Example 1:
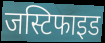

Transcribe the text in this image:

जस्टिफाइड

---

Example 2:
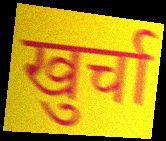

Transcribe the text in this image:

खुर्चा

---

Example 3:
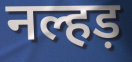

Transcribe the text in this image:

नल्हड़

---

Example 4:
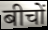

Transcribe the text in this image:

बीचों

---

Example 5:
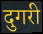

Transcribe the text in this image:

दुगरी